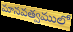
మానవత్వములో